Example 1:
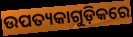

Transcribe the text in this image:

ଉପତ୍ୟକାଗୁଡ଼ିକରେ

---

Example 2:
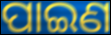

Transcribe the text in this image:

ପାଇଣ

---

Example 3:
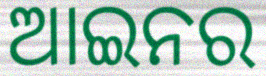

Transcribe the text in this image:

ଆଇନର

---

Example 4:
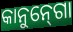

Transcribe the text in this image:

କାନୁନ୍‍ଗୋ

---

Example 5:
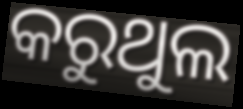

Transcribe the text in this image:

କରୁଥୁଲ